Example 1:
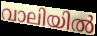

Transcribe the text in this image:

വാലിയിൽ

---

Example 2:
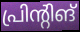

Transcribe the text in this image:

പ്രിന്റിങ്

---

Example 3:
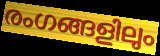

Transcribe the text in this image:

രംഗങ്ങളിലും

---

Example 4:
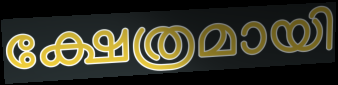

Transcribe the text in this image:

ക്ഷേത്രമായി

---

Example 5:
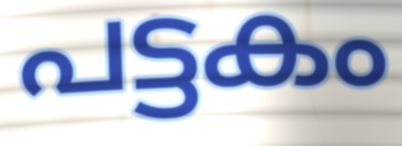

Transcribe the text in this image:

പട്ടകം